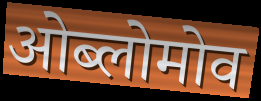
ओब्लोमोव